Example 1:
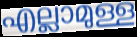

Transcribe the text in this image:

എല്ലാമുള്ള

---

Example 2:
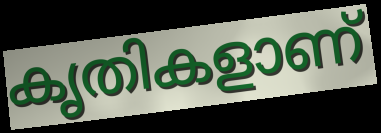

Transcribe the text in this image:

കൃതികളാണ്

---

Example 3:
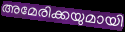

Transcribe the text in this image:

അമേരിക്കയുമായി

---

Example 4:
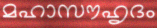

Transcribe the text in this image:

മഹാസൗഹൃദം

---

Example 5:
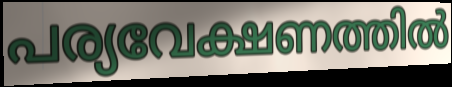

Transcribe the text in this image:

പര്യവേക്ഷണത്തിൽ